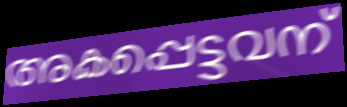
അകപ്പെട്ടവന്